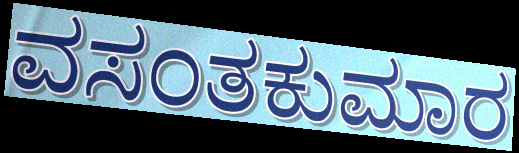
ವಸಂತಕುಮಾರ